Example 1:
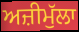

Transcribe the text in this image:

ਅਜ਼ੀਮੁੱਲਾ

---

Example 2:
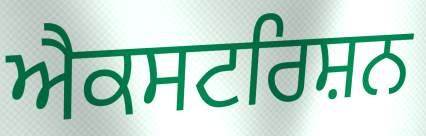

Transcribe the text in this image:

ਐਕਸਟਰਿਸ਼ਨ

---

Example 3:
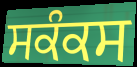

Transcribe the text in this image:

ਸਕੰਕਸ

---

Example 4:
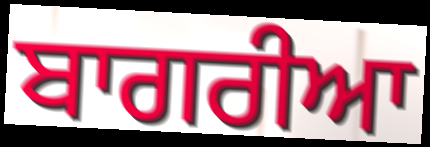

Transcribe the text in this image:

ਬਾਗਰੀਆ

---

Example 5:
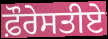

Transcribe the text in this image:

ਫ਼ੌਰੇਸਤੀਏ